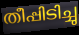
തീപ്പിടിച്ചു